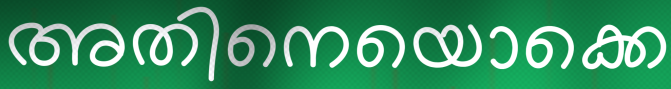
അതിനെയൊക്കെ